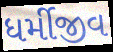
ધર્મીજીવ